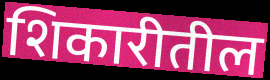
शिकारीतील